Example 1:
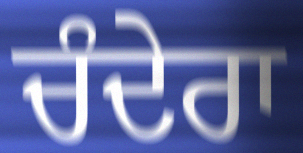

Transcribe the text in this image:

ਚੰਦੇਰਾ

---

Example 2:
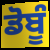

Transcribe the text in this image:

ਡੋਬੂੰ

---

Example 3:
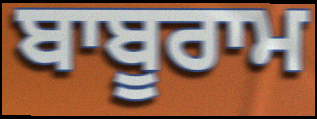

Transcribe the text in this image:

ਬਾਬੂਰਾਮ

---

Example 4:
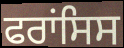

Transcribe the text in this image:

ਫਰਾਂਸਿਸ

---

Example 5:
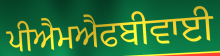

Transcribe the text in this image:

ਪੀਐਮਐਫਬੀਵਾਈ